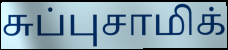
சுப்புசாமிக்